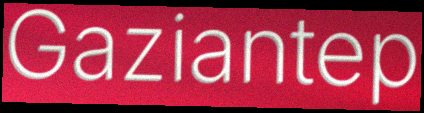
Gaziantep